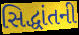
સિદ્ધાંતની